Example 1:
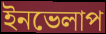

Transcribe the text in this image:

ইনভেলাপ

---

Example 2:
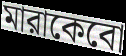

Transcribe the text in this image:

মারাকেবো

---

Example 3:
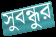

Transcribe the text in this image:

সুবন্ধুর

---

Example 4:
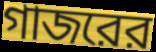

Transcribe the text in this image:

গাজরের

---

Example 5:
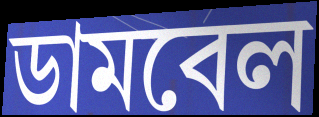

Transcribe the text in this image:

ডামবেল